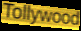
Tollywood